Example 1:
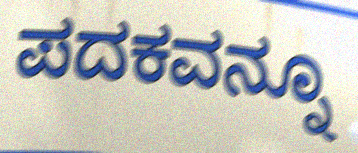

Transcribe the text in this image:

ಪದಕವನ್ನೂ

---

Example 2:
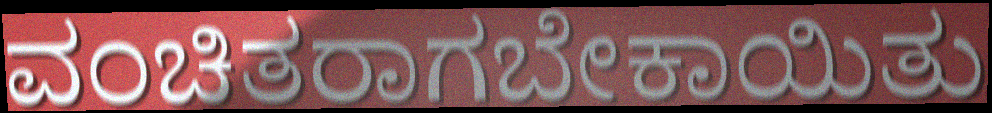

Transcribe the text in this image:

ವಂಚಿತರಾಗಬೇಕಾಯಿತು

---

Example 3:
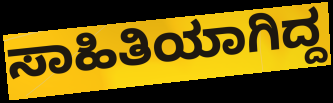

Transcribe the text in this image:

ಸಾಹಿತಿಯಾಗಿದ್ದ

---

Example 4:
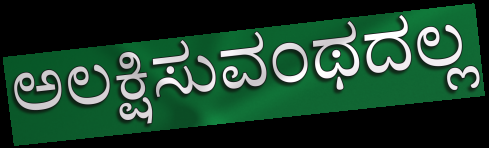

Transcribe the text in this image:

ಅಲಕ್ಷಿಸುವಂಥದಲ್ಲ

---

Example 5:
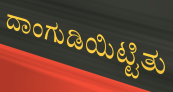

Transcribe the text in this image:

ದಾಂಗುಡಿಯಿಟ್ಟಿತು